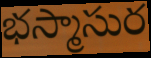
భస్మాసుర